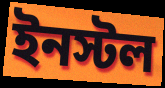
ইনস্টল